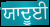
ਯਾਦੂਈ